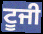
ਟੂਜੀ